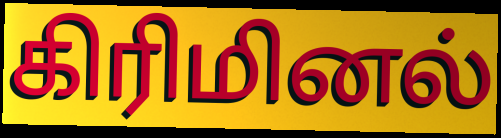
கிரிமினல்